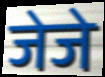
जेजे